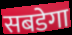
सबडेगा